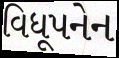
વિધૂપનેન